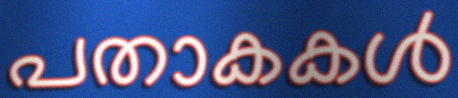
പതാകകൾ